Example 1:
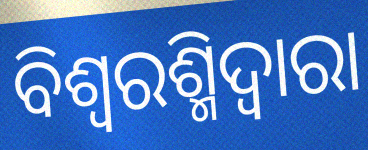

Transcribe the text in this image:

ବିଶ୍ୱରଶ୍ମିଦ୍ୱାରା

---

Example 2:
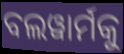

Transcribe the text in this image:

ବଲୱାର୍ମକୁ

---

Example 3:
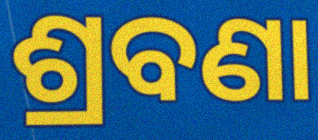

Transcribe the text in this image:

ଶ୍ରବଣା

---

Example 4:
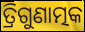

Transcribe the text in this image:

ତ୍ରିଗୁଣାତ୍ମକ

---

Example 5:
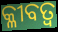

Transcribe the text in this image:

କ୍ଳୀବତ୍ବ